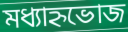
মধ্যাহ্নভোজ